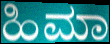
ಹಿಮಾ